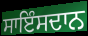
ਸਾਇੰਸਦਾਨ